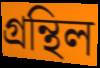
গ্ৰন্থিল